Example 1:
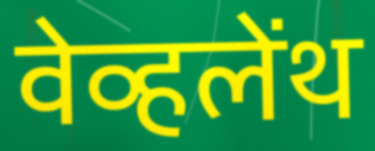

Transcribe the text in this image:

वेव्हलेंथ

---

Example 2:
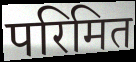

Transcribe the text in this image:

परिमित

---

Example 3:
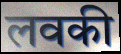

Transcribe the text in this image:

लवकी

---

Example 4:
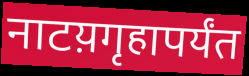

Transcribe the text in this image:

नाटय़गृहापर्यंत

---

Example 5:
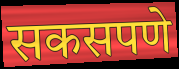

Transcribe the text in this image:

सकसपणे